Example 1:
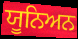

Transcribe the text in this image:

ਯੂਨਿਅਨ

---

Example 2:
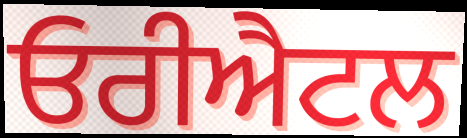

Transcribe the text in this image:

ਓਰੀਐਟਲ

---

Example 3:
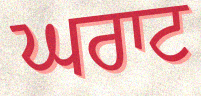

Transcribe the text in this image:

ਘਰਾਟ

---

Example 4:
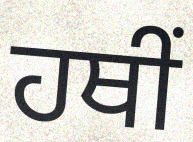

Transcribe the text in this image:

ਹਥੀਂ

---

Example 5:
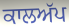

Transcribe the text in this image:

ਕਾਲਅੱਪ